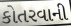
કોતરવાની